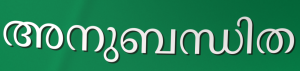
അനുബന്ധിത